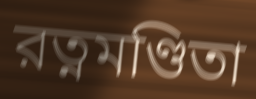
রত্নমণ্ডিতা